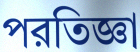
পরতিজ্ঞা